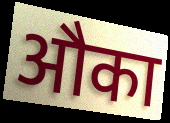
औका